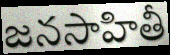
జనసాహితీ